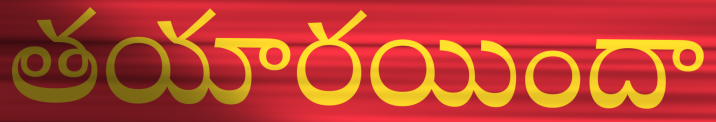
తయారయిందా